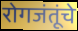
रोगजंतूंचे